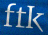
ftk